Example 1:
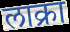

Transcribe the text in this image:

लाक्रा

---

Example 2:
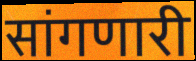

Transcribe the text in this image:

सांगणारी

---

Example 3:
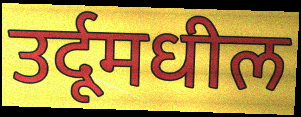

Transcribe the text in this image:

उर्दूमधील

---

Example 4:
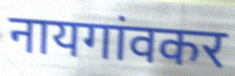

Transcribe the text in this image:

नायगांवकर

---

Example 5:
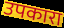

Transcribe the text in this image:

उपकारा